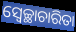
ସ୍ୱେଚ୍ଛାଚାରିତା